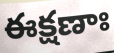
ఈక్షణాః